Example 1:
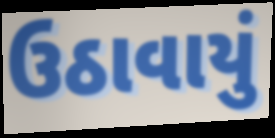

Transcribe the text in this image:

ઉઠાવાયું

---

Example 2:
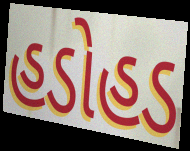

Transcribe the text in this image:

હડોહડ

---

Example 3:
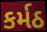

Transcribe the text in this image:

કર્મઠ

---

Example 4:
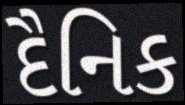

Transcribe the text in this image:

દૈનિક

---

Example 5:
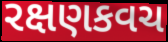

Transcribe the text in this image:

રક્ષણકવચ